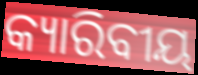
କ୍ୟାରିବୀୟ